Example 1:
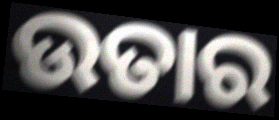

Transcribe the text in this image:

ଉତାର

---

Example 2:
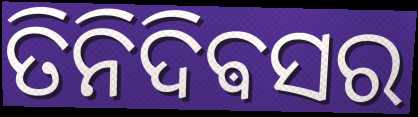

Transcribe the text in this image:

ତିନିଦିଵସର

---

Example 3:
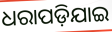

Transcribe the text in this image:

ଧରାପଡ଼ିଯାଇ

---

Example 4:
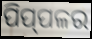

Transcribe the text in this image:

ପିପ୍‌ପଳର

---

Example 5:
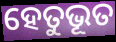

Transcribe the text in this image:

ହେତୁଭୂତ